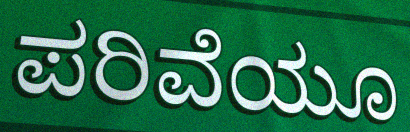
ಪರಿವೆಯೂ